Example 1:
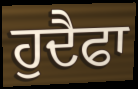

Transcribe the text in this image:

ਹੁਦੈਫਾ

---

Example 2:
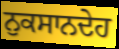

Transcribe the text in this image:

ਨੁਕਸਾਨਦੇਹ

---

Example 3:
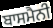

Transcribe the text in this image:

ਬਾਸਮੈਨੀ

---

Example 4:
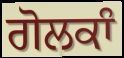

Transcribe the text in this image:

ਗੋਲਕਾੰ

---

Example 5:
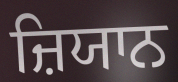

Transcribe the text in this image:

ਜ਼ਿਯਾਨ